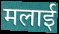
मलाई